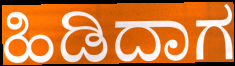
ಹಿಡಿದಾಗ